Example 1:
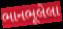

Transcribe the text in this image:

ભાનભૂલેલા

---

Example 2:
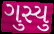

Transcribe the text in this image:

ગુસ્યુ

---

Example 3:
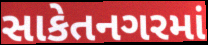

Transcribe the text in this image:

સાકેતનગરમાં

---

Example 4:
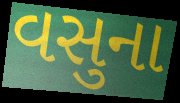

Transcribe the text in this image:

વસુના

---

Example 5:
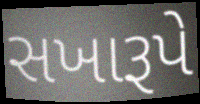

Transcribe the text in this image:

સખારૂપે